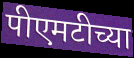
पीएमटीच्या